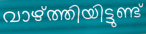
വാഴ്ത്തിയിട്ടുണ്ട്